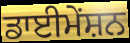
ਡਾਈਮੇਂਸ਼ਨ